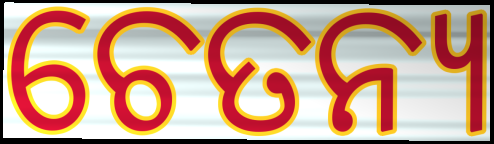
ଚେତନ୍ୟ